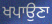
ਖਪਾਉਣਾ